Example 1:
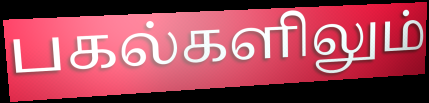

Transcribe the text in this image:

பகல்களிலும்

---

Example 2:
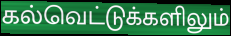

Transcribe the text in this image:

கல்வெட்டுக்களிலும்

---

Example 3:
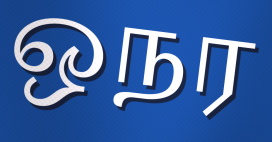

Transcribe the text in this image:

ஒநர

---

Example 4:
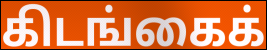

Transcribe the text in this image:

கிடங்கைக்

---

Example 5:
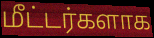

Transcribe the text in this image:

மீட்டர்களாக